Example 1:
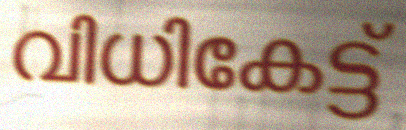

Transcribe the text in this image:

വിധികേട്ട്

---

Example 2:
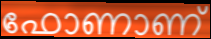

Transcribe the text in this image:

ഫോണാണ്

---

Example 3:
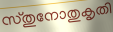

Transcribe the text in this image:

സ്തുനോതുകൃതി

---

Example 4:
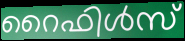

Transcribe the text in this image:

റൈഫിൾസ്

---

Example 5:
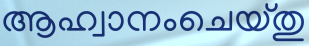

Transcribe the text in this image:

ആഹ്വാനംചെയ്തു